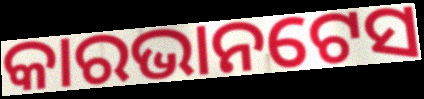
କାରଭାନଟେସ